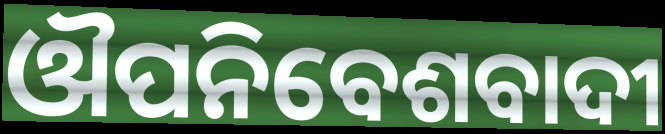
ଔପନିବେଶବାଦୀ